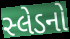
સ્લેડનો